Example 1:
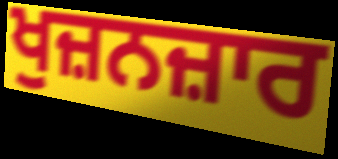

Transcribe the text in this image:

ਖੁਜ਼ਨਜ਼ਾਰ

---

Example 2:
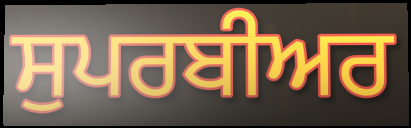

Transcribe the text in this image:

ਸੁਪਰਬੀਅਰ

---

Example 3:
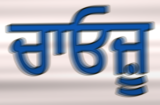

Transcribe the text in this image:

ਚਾਓਜ਼ੂ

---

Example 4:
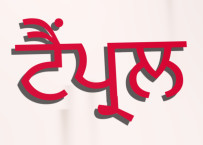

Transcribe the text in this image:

ਟੈਂਪ੍ਰਲ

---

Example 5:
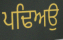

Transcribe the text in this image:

ਪਢਿਅਉ